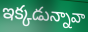
ఇక్కడున్నావా